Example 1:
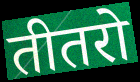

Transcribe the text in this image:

तीतरो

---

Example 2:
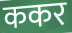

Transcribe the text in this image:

ककर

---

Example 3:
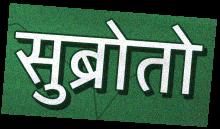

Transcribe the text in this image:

सुब्रोतो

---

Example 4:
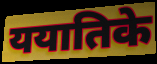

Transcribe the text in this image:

ययातिके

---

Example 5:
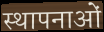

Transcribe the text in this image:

स्थापनाओं